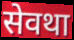
सेवथा